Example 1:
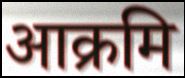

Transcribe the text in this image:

आक्रमि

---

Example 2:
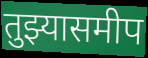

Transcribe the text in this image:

तुझ्यासमीप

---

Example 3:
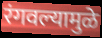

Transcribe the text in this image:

रंगवल्यामुळे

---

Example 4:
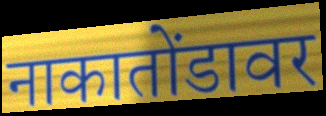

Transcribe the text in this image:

नाकातोंडावर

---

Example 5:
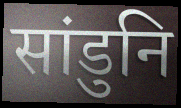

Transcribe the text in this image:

सांडुनि